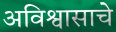
अविश्वासाचे